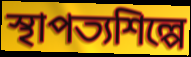
স্থাপত্যশিল্পে